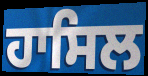
ਹਾਸਿਲ